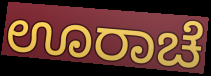
ಊರಾಚೆ